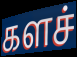
களச்